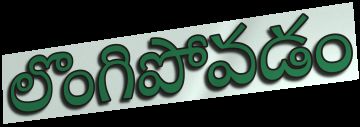
లొంగిపోవడం